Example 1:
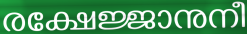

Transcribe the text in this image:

രക്ഷേജ്ജാനുനീ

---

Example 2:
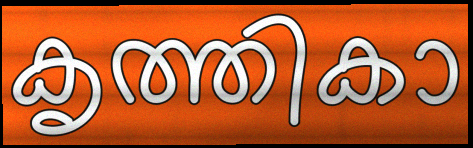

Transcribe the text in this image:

കൃത്തികാ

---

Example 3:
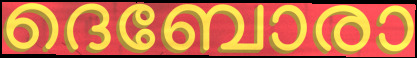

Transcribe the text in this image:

ദെബോരാ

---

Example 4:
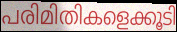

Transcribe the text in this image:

പരിമിതികളെക്കൂടി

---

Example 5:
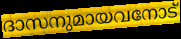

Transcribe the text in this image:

ദാസനുമായവനോട്